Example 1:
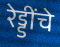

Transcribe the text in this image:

रेड्डींचे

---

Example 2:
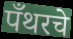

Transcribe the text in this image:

पँथरचे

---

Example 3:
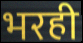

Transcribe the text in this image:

भरही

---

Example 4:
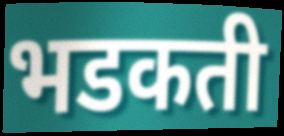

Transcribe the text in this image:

भडकती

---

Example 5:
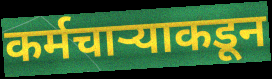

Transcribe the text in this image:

कर्मचाऱ्याकडून